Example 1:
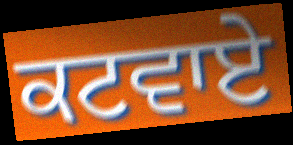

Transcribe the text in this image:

ਕਟਵਾਏ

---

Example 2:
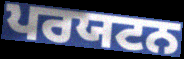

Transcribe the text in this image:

ਪਰਯਟਨ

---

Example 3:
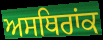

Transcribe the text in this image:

ਅਸਥਿਰਾਂਕ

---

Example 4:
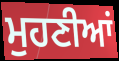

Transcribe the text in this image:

ਮੁਹਣੀਆਂ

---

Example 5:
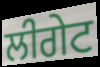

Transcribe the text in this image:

ਲੀਗੇਟ